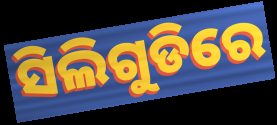
ସିଲିଗୁଡିରେ